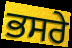
ਭਸਰੇ